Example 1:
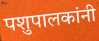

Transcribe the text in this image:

पशुपालकांनी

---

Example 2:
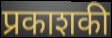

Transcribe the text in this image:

प्रकाशकी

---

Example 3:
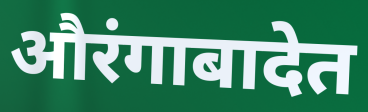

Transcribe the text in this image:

औरंगाबादेत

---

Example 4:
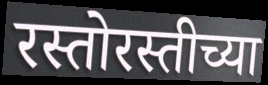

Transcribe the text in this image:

रस्तोरस्तीच्या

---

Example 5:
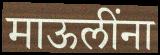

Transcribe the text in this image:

माऊलींना